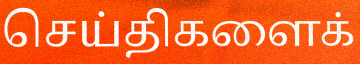
செய்திகளைக்